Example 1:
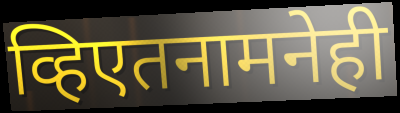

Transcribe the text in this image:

व्हिएतनामनेही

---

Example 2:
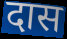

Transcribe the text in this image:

दास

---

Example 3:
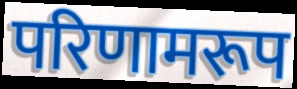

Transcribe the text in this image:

परिणामरूप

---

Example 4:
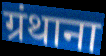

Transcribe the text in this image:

ग्रंथाना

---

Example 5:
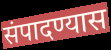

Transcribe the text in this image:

संपादण्यास